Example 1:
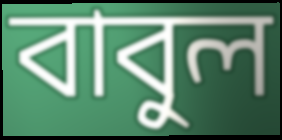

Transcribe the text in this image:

বাবুল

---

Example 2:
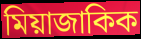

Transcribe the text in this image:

মিয়াজাকিক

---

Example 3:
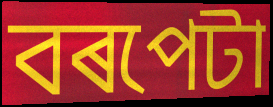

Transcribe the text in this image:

বৰপেটা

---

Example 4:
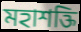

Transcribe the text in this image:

মহাশক্তি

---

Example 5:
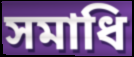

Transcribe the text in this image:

সমাধি